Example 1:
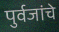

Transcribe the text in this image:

पुर्वजांचे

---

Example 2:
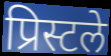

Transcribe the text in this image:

प्रिस्टले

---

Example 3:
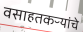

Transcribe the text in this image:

वसाहतकऱ्यांचे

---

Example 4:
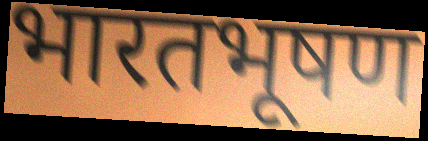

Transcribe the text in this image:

भारतभूषण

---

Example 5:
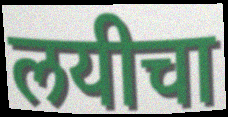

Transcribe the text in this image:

लयीचा